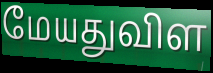
மேயதுவிள